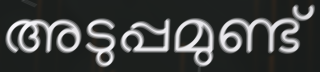
അടുപ്പമുണ്ട്